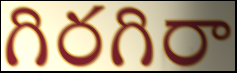
గిరగిరా